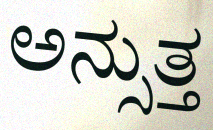
ಅನ್ಸುತ್ತ